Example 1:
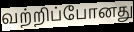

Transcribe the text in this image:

வற்றிப்போனது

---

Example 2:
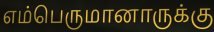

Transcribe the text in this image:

எம்பெருமானாருக்கு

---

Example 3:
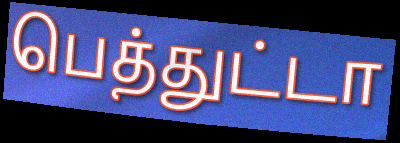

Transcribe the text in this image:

பெத்துட்டா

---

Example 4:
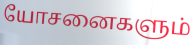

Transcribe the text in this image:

யோசனைகளும்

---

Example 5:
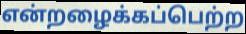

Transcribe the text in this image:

என்றழைக்கப்பெற்ற